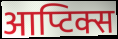
आप्टिक्स